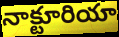
నాక్టూరియా